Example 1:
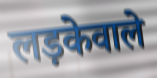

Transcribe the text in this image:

लड़केवाले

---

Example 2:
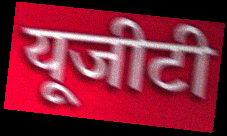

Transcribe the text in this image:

यूजीटी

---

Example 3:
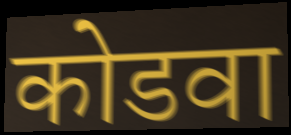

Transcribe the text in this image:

कोडवा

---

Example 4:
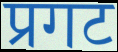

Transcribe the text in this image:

प्रगट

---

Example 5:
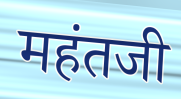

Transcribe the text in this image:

महंतजी